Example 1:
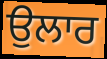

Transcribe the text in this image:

ਉਲਾਰ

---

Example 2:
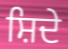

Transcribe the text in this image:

ਸ਼ਿਦੇ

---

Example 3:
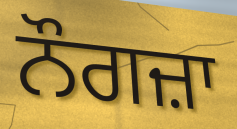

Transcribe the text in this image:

ਨੌਗਜ਼ਾ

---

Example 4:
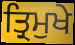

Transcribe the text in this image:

ਤ੍ਰਿਮੁਖੇ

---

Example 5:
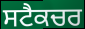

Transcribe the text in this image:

ਸਟੈਕਚਰ